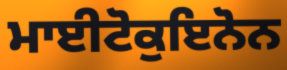
ਮਾਈਟੋਕੁਇਨੋਨ